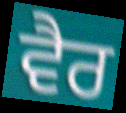
ਵੈਰ